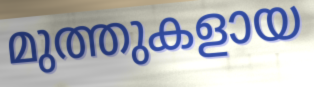
മുത്തുകളായ